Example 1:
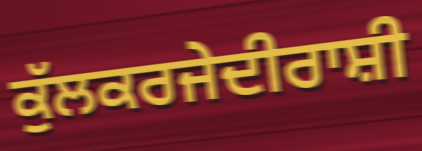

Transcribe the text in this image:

ਕੁੱਲਕਰਜੇਦੀਰਾਸ਼ੀ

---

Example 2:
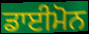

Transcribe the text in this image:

ਡਾਈਮੋਨ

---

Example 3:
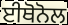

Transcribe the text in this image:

ਈਥੋਨੋਲ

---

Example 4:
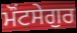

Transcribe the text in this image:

ਮੌਂਟਸੇਗੁਰ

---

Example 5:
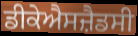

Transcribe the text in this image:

ਡੀਕੇਐਸਜ਼ੈਡਸੀ